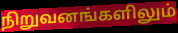
நிறுவனங்களிலும்